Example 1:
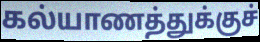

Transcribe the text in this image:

கல்யாணத்துக்குச்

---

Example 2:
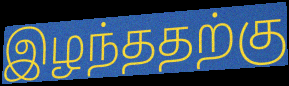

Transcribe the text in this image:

இழந்ததற்கு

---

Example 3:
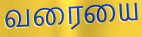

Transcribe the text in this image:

வரையை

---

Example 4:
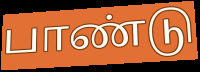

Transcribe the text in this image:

பாண்டு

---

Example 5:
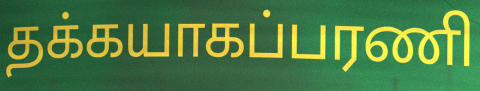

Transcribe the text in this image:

தக்கயாகப்பரணி